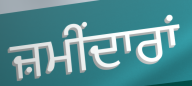
ਜ਼ਮੀਂਦਾਰਾਂ